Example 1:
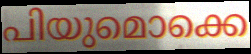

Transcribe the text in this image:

പിയുമൊക്കെ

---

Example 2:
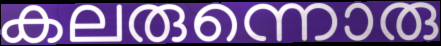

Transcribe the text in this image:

കലരുന്നൊരു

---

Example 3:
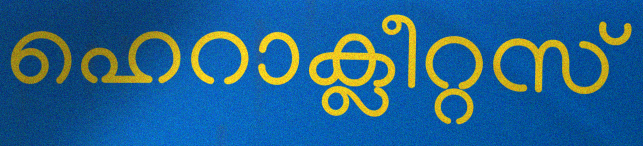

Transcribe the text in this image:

ഹെറാക്ലീറ്റസ്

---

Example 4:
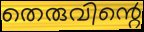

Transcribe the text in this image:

തെരുവിന്റെ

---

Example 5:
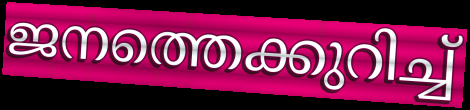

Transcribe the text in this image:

ജനത്തെക്കുറിച്ച്